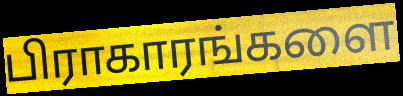
பிராகாரங்களை